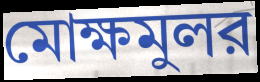
মোক্ষমুলর